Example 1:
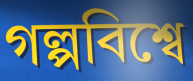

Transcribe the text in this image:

গল্পবিশ্বে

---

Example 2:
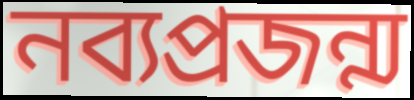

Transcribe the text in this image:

নব্যপ্রজন্ম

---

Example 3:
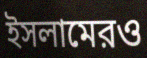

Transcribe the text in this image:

ইসলামেরও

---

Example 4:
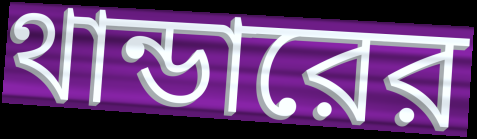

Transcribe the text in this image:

থান্ডারের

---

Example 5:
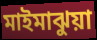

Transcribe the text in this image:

মাইমাঝুয়া